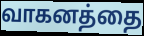
வாகனத்தை